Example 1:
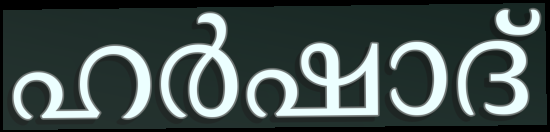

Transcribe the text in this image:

ഹർഷാദ്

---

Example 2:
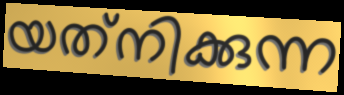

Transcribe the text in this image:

യത്‌നിക്കുന്ന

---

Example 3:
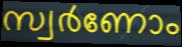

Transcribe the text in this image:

സ്വർണോം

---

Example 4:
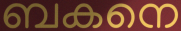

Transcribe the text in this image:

ബകനെ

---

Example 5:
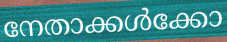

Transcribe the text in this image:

നേതാക്കൾക്കോ